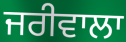
ਜਰੀਵਾਲਾ